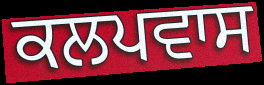
ਕਲਪਵਾਸ